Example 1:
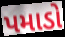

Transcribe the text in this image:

પમાડો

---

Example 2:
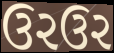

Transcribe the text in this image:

ઉરઉર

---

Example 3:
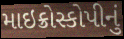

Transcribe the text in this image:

માઇક્રોસ્કોપીનું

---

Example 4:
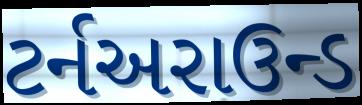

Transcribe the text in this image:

ટર્નઅરાઉન્ડ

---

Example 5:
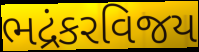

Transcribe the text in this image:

ભદ્રંકરવિજય